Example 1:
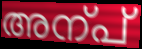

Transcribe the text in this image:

അന്പ്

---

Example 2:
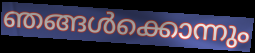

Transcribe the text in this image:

ഞങ്ങൾക്കൊന്നും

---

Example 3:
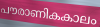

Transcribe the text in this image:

പൗരാണികകാലം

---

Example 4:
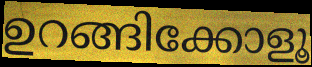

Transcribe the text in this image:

ഉറങ്ങിക്കോളൂ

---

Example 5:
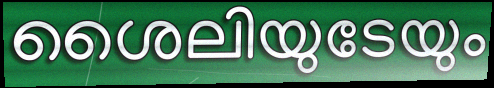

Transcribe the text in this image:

ശൈലിയുടേയും